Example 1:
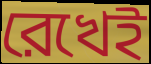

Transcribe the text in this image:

রেখেই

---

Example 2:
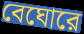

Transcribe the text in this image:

বেঘোরে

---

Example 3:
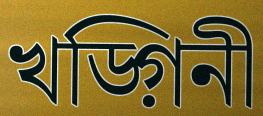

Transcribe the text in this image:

খড়্গিনী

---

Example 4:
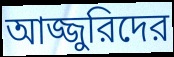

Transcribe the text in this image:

আজ্জুরিদের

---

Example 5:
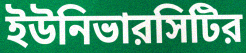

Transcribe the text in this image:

ইউনিভারসিটির